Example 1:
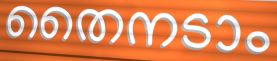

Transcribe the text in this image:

തൈനടാം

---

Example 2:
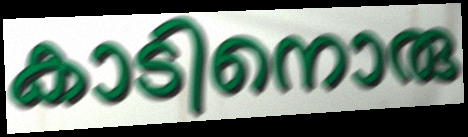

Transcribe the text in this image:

കാടിനൊരു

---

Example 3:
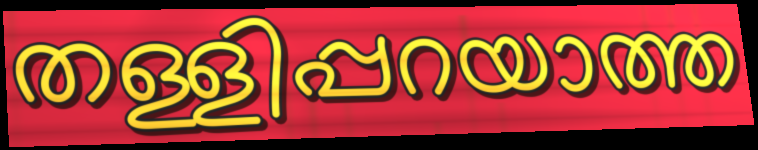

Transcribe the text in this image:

തള്ളിപ്പറയാത്ത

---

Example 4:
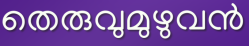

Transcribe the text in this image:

തെരുവുമുഴുവൻ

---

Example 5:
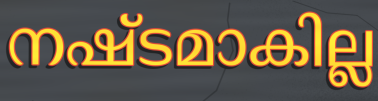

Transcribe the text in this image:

നഷ്ടമാകില്ല